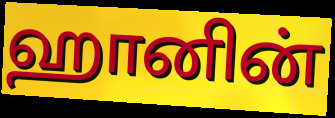
ஹானின்